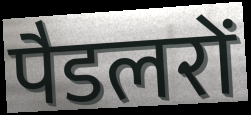
पैडलरों